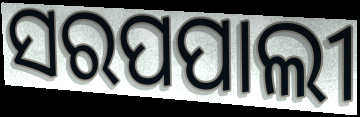
ସରପପାଲୀ